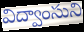
విద్వాంసుని